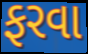
ફરવા